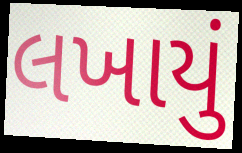
લખાયું